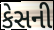
કેસની